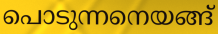
പൊടുന്നനെയങ്ങ്